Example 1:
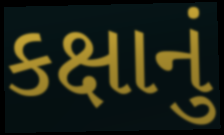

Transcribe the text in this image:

કક્ષાનું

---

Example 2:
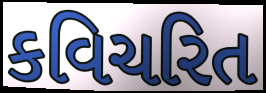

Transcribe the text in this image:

કવિચરિત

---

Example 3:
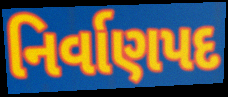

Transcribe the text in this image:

નિર્વાણપદ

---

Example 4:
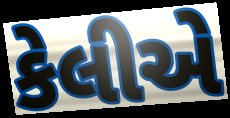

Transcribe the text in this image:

કેલીએ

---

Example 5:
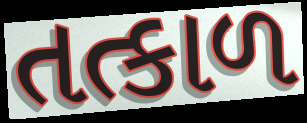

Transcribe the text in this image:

તત્કાળ